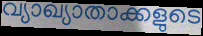
വ്യാഖ്യാതാക്കളുടെ